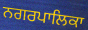
ਨਗਰਪਾਲਿਕਾ